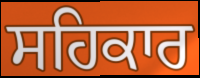
ਸਹਿਕਾਰ